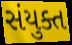
સંયુક્ત